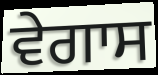
ਵੇਗਾਸ